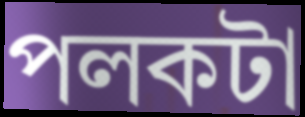
পলকটা